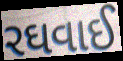
રઘવાઈ